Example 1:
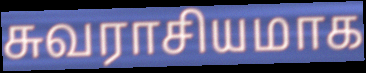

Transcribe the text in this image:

சுவராசியமாக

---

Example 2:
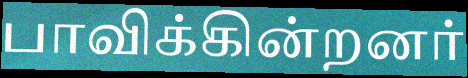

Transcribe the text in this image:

பாவிக்கின்றனர்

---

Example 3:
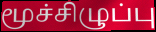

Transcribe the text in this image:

மூச்சிழுப்பு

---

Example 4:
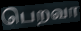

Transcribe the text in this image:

பெறவா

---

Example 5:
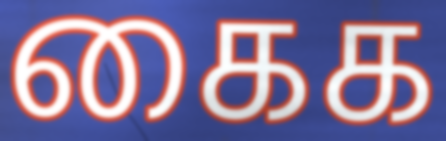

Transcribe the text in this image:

கைக